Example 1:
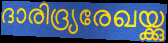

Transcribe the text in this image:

ദാരിദ്ര്യരേഖയ്ക്കു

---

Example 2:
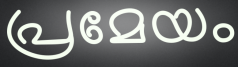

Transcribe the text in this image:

പ്രമേയം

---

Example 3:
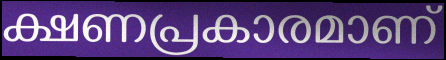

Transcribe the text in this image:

ക്ഷണപ്രകാരമാണ്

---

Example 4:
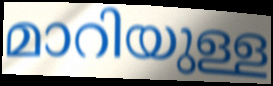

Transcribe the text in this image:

മാറിയുള്ള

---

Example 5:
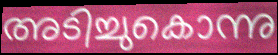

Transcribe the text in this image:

അടിച്ചുകൊന്നു